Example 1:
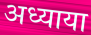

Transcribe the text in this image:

अध्याया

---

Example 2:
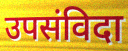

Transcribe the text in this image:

उपसंविदा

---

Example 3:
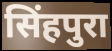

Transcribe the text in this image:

सिंहपुरा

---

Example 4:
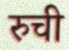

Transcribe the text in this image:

रुची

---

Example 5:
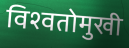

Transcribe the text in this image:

विश्वतोमुखी